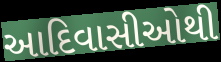
આદિવાસીઓથી